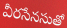
వీరసేనసుతో